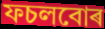
ফচলবোৰ